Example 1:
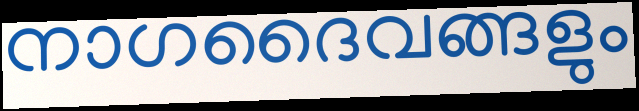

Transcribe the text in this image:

നാഗദൈവങ്ങളും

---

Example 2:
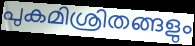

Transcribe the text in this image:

പുകമിശ്രിതങ്ങളും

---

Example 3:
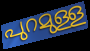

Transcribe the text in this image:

പുറമുള്ള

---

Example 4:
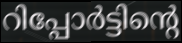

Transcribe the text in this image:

റിപ്പോർട്ടിന്റെ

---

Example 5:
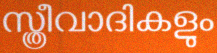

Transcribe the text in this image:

സ്ത്രീവാദികളും